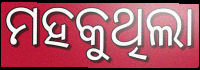
ମହକୁଥିଲା